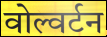
वोल्वर्टन